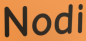
Nodi